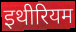
इथीरियम